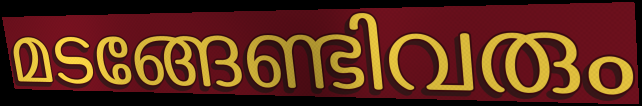
മടങ്ങേണ്ടിവരും